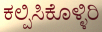
ಕಲ್ಪಿಸಿಕೊಳ್ಳಿರಿ